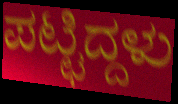
ಪಟ್ಟಿದ್ದಳು